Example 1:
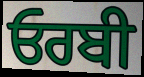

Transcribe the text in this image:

ਓਰਬੀ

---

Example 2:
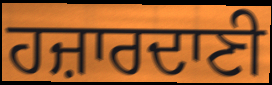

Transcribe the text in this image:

ਹਜ਼ਾਰਦਾਣੀ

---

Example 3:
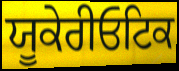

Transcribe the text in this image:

ਯੂਕੇਰੀਓਟਿਕ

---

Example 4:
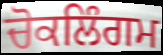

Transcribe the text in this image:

ਚੋਕਲਿੰਗਮ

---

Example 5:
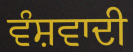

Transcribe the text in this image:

ਵੰਸ਼ਵਾਦੀ